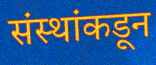
संस्थांकडून